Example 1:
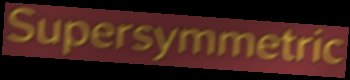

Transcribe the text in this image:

Supersymmetric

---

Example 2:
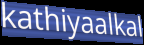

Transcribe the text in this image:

kathiyaalkal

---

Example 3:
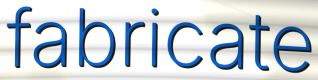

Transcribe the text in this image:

fabricate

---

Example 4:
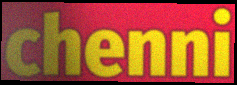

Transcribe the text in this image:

chenni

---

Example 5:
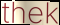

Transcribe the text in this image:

thek